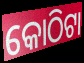
କୋଠିଟା